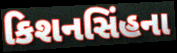
કિશનસિંહના